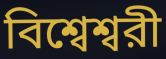
বিশ্বেশ্বরী